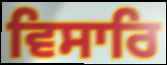
ਵਿਸਾਰਿ